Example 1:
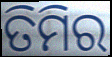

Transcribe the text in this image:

ତିମିର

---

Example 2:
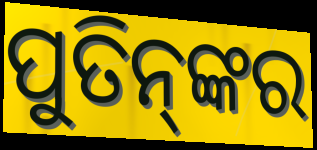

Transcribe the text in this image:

ପୁତିନ୍‌ଙ୍କର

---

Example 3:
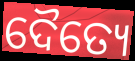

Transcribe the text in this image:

ଦୈତ୍ୟେ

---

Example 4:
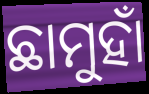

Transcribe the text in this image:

ଛାମୁହାଁ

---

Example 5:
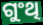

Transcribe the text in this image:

ଗୁଂଥି